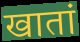
खातां